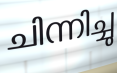
ചിന്നിച്ചു